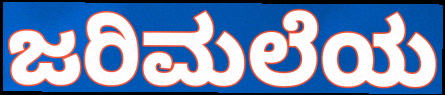
ಜರಿಮಲೆಯ